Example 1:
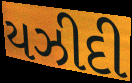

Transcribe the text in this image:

યઝીદી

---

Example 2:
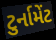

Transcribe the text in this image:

ટુર્નામેંટ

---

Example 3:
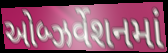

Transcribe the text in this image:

ઓબ્ઝર્વેશનમાં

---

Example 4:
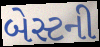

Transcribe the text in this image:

બેસ્ટની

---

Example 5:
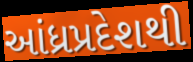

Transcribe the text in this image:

આંધ્રપ્રદેશથી